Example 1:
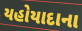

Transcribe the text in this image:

યહોયાદાના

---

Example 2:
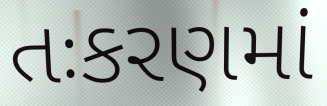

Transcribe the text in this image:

તઃકરણમાં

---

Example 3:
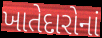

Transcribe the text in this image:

ખાતેદારોનાં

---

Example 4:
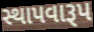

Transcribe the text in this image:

સ્થાપવારૂપ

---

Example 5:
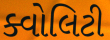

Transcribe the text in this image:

ક્વોલિટી